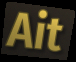
Ait